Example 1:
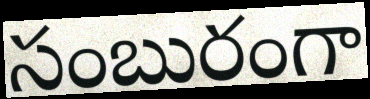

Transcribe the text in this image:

సంబురంగా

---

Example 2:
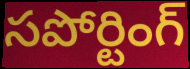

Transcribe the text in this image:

సపోర్టింగ్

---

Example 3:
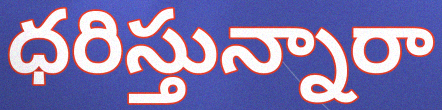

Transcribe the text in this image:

ధరిస్తున్నారా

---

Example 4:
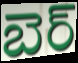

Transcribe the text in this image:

బెర్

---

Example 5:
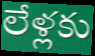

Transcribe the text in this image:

లేళ్లకు